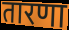
तारणा